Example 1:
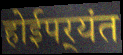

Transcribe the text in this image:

होईपर्यंत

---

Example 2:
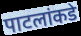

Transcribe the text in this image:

पाटलांकडे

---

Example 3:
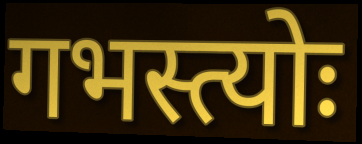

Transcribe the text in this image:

गभस्त्योः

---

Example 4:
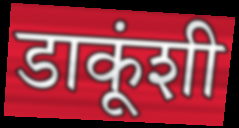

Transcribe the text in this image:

डाकूंशी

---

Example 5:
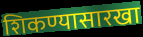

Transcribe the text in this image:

शिकण्यासारखा